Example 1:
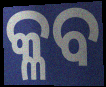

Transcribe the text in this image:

କ୍ଳବ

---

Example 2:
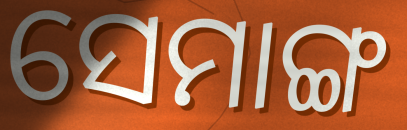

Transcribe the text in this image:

ସେମାଙ୍ଗ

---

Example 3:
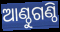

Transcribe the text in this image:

ଆଣ୍ଠୁଗଣ୍ଠି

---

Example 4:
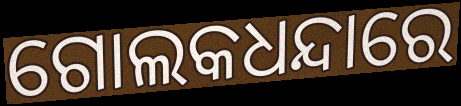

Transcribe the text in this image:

ଗୋଲକଧନ୍ଦାରେ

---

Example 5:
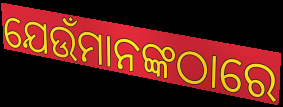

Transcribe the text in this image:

ଯେଉଁମାନଙ୍କଠାରେ